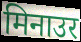
मिनाउर